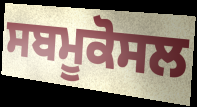
ਸਬਮੂਕੋਸਲ